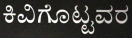
ಕಿವಿಗೊಟ್ಟವರ